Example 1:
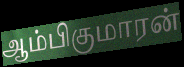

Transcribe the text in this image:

ஆம்பிகுமாரன்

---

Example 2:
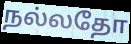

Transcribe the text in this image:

நல்லதோ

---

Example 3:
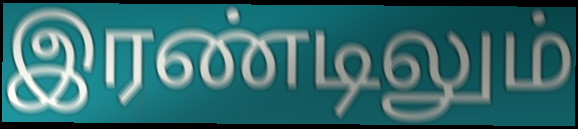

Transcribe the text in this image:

இரண்டிலும்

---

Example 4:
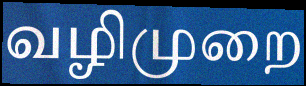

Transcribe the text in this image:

வழிமுறை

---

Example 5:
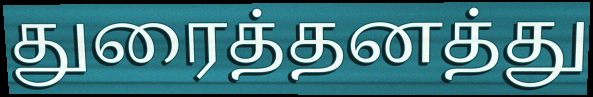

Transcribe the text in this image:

துரைத்தனத்து